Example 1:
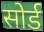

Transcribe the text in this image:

सोर्ड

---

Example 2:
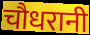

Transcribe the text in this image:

चौधरानी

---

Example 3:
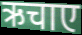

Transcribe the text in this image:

ऋचाए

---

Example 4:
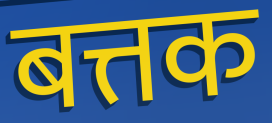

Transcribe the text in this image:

बत्तक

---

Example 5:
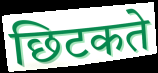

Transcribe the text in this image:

छिटकते